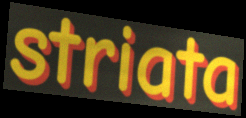
striata